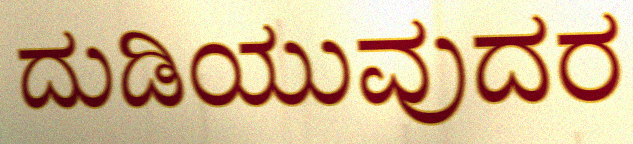
ದುಡಿಯುವುದರ